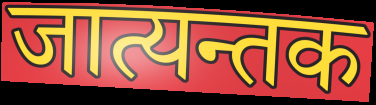
जात्यन्तक